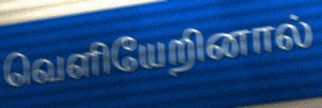
வெளியேறினால்